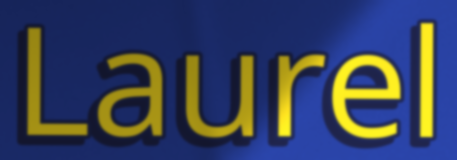
Laurel